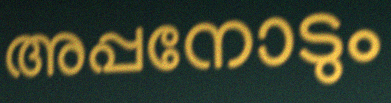
അപ്പനോടും